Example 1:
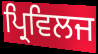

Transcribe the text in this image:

ਪ੍ਰਿਵਿਲਜ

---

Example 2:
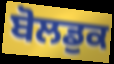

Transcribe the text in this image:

ਬੋਲਡੁਕ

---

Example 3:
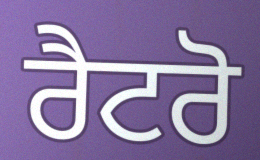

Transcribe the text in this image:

ਰੈਟਰੋ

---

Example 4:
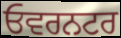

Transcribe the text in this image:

ਓਵਰਨਟਰ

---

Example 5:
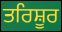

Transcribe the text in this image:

ਤਰਿਸ਼ੂਰ